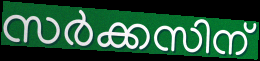
സർക്കസിന്